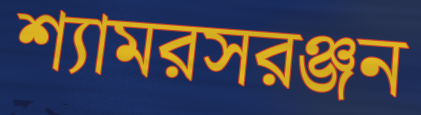
শ্যামরসরঞ্জন